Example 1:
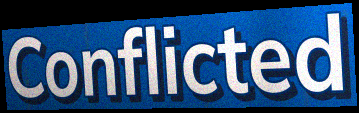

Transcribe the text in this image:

Conflicted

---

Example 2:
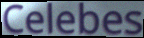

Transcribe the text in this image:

Celebes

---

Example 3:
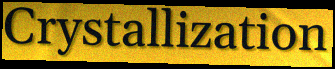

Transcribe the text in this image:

Crystallization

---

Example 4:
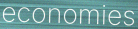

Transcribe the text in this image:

economies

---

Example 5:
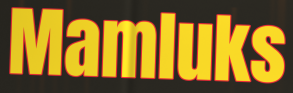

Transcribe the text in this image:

Mamluks